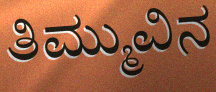
ತಿಮ್ಮುವಿನ